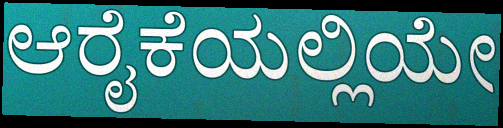
ಆರೈಕೆಯಲ್ಲಿಯೇ